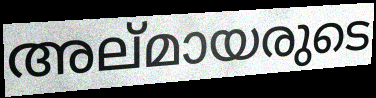
അല്മായരുടെ